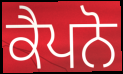
ਕੈਪਨੋ